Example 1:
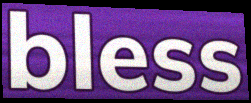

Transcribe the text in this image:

bless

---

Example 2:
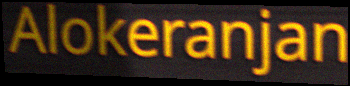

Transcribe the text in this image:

Alokeranjan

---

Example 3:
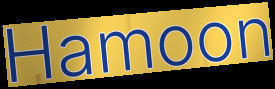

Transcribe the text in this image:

Hamoon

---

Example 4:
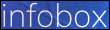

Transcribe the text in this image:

infobox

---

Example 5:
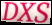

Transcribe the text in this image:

DXS